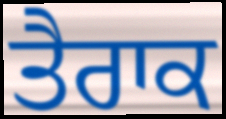
ਤੈਰਾਕ